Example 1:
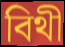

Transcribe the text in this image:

বিথী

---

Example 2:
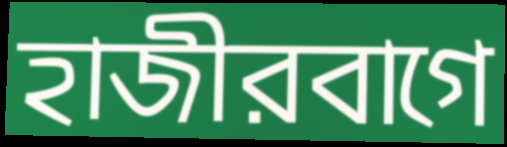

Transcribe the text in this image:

হাজীরবাগে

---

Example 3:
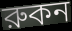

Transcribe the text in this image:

রুকন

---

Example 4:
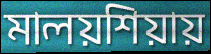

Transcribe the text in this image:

মালয়শিয়ায়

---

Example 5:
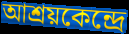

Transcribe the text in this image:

আশ্রয়কেন্দ্রে